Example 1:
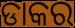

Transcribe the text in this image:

ଡାକର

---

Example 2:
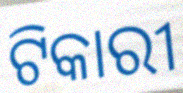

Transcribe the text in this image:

ଟିକାରୀ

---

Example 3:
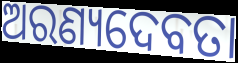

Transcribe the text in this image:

ଅରଣ୍ୟଦେବତା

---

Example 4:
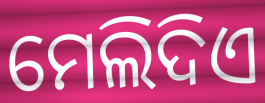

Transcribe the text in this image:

ମେଲିଦିଏ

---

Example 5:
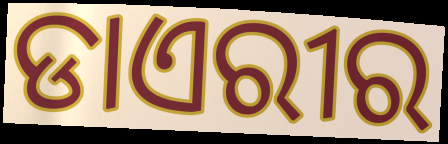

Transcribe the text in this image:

ଡାଏରୀର